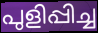
പുളിപ്പിച്ച